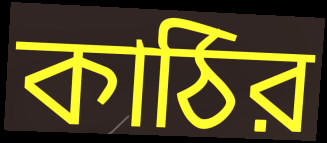
কাঠির